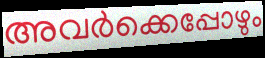
അവർക്കെപ്പോഴും